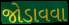
જોડાવવા